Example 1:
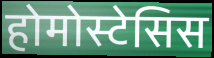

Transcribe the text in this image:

होमोस्टेसिस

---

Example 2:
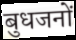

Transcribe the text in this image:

बुधजनों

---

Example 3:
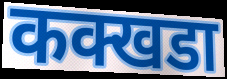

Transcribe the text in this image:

कक्खडा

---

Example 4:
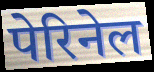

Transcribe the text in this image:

पेरिनेल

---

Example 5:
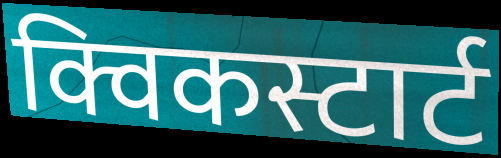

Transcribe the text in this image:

क्विकस्टार्ट